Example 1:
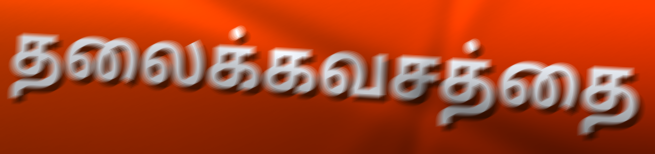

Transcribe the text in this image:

தலைக்கவசத்தை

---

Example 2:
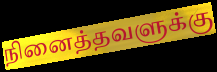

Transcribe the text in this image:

நினைத்தவளுக்கு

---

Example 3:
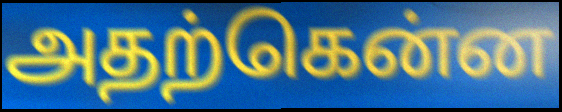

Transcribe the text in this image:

அதற்கென்ன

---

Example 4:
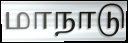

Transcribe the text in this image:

மாநாடு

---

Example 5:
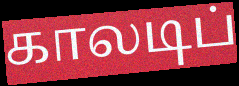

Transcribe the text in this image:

காலடிப்